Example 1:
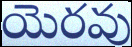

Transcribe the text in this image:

యెరవు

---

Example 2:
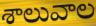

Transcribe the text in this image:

శాలువాల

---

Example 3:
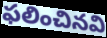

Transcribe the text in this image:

ఫలించినవి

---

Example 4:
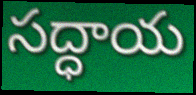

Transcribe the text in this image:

సద్ధాయ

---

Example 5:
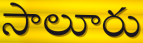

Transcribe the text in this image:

సాలూరు